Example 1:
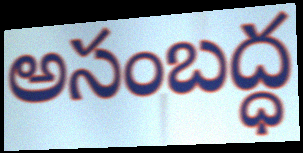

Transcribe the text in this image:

అసంబద్ధ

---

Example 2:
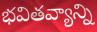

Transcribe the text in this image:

భవితవ్యాన్ని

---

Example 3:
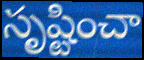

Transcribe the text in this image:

సృష్టించా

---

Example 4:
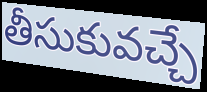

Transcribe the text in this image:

తీసుకువచ్చే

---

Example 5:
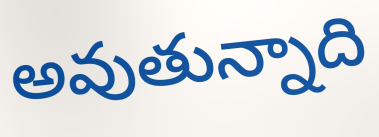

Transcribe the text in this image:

అవుతున్నాది